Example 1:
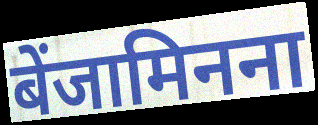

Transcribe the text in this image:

बेंजामिनना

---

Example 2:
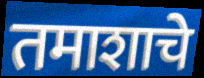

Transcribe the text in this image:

तमाशाचे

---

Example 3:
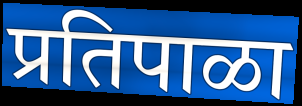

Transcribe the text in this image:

प्रतिपाळा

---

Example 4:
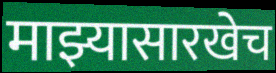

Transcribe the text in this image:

माझ्यासारखेच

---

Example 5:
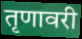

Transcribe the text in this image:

तृणावरी